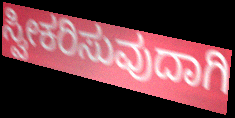
ಸ್ವೀಕರಿಸುವುದಾಗಿ